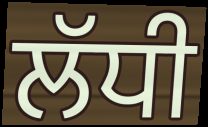
ਲੱਧੀ